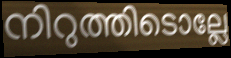
നിറുത്തിടൊല്ലേ